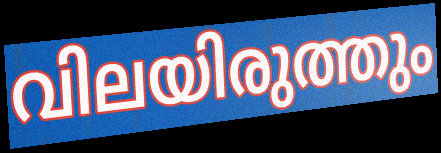
വിലയിരുത്തും